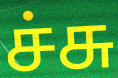
ச்சு